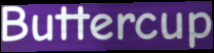
Buttercup